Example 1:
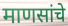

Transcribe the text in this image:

माणसांचे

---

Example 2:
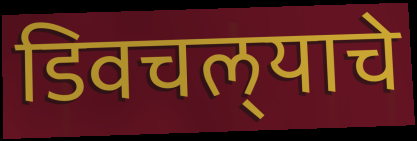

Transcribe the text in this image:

डिवचल्याचे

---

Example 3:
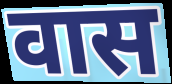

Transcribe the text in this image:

वास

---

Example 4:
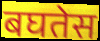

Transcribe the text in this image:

बघतेस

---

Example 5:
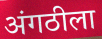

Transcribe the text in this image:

अंगठीला